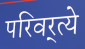
परिवर्त्ये